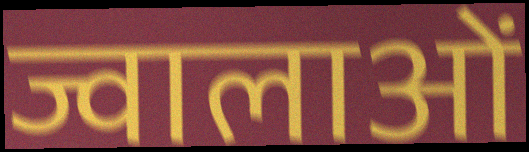
ज्वालाओं